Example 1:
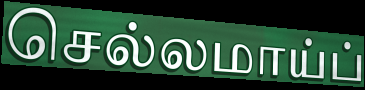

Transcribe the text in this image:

செல்லமாய்ப்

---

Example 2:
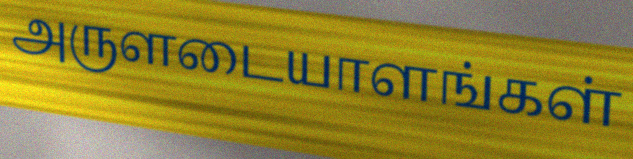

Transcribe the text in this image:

அருளடையாளங்கள்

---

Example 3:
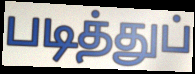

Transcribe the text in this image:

படித்துப்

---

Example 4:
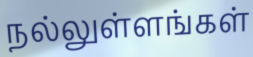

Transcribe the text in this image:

நல்லுள்ளங்கள்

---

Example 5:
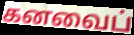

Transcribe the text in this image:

கனவைப்